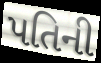
પતિની